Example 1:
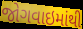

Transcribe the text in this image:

જોગવાઇમાંથી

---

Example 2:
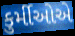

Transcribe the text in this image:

કુર્મીઓએ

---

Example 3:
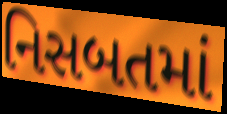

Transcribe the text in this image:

નિસબતમાં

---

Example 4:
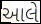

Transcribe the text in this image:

આલે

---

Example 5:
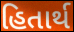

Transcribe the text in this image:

હિતાર્થ